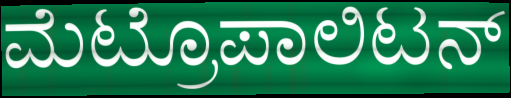
ಮೆಟ್ರೊಪಾಲಿಟನ್